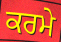
ਕਰਮੇ